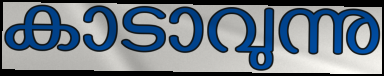
കാടാവുന്നു